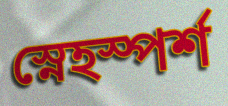
স্নেহস্পর্শ